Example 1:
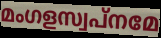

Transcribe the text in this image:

മംഗളസ്വപ്നമേ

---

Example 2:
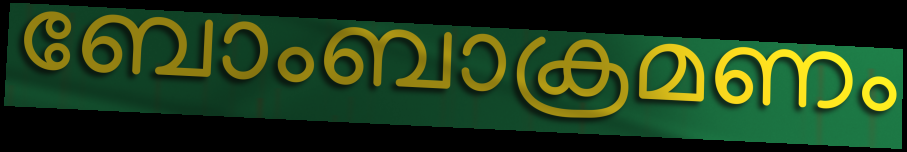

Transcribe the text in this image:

ബോംബാക്രമണം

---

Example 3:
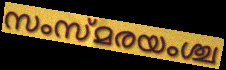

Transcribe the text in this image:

സംസ്മരയംശ്ച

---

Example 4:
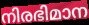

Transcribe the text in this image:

നിരഭിമാന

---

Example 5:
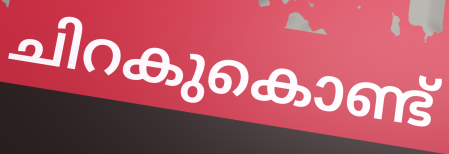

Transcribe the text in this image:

ചിറകുകൊണ്ട്